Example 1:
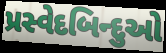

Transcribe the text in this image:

પ્રસ્વેદબિન્દુઓ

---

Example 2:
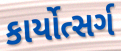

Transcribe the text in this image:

કાર્યોત્સર્ગ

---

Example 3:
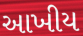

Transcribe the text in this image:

આખીય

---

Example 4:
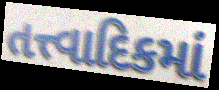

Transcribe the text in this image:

તત્ત્વાદિકમાં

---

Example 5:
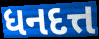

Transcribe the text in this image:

ધનદત્ત